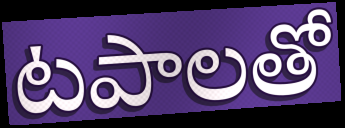
టపాలతో